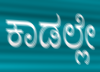
ಕಾಡಲ್ಲೇ